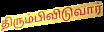
திரும்பிவிடுவார்